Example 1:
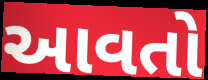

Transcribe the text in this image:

આવતો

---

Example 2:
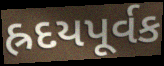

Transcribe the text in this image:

હ્રદયપૂર્વક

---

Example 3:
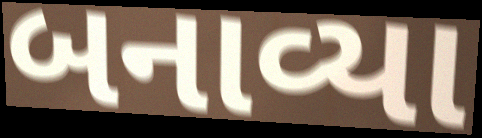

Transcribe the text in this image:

બનાવ્યા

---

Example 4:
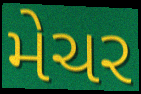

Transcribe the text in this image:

મેચર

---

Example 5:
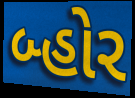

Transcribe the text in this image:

બ્હોર